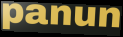
panun